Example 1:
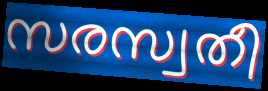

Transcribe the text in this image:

സരസ്വതീ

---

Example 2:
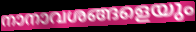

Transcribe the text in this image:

നാനാവശങ്ങളെയും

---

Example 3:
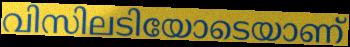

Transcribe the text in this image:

വിസിലടിയോടെയാണ്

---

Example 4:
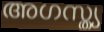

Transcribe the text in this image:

അഗസ്ത്യ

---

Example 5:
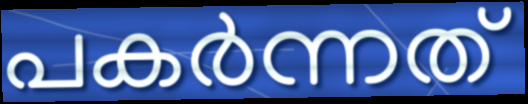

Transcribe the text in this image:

പകർന്നത്